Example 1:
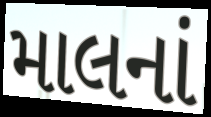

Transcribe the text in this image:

માલનાં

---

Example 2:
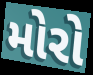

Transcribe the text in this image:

મોરો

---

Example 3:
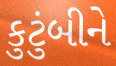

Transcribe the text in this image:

કુટુંબીને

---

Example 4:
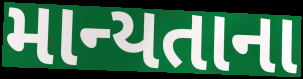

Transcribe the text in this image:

માન્યતાના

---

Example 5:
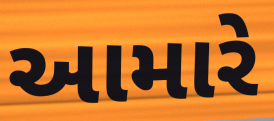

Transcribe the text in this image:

આમારે